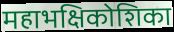
महाभक्षिकोशिका